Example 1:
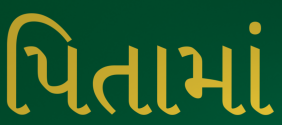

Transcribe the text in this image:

પિતામાં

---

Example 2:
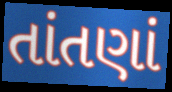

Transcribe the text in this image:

તાંતણાં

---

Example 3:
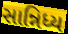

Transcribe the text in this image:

સાન્નિધ્ય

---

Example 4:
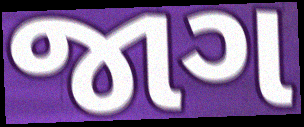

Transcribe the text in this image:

જાગ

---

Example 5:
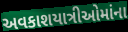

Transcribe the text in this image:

અવકાશયાત્રીઓમાંના